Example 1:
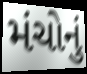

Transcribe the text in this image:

મંચોનું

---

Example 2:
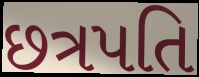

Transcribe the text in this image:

છત્રપતિ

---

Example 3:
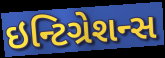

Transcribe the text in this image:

ઇન્ટિગ્રેશન્સ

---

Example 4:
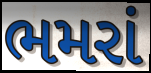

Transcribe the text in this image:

ભમરાં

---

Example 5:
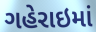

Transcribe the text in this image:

ગહેરાઇમાં